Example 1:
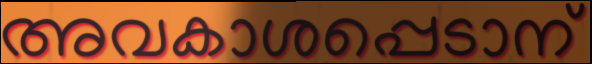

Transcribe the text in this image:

അവകാശപ്പെടാന്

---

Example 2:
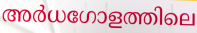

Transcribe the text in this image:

അർധഗോളത്തിലെ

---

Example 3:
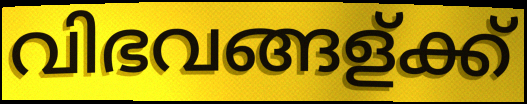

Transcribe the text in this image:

വിഭവങ്ങള്ക്ക്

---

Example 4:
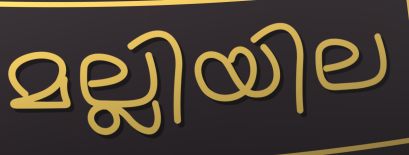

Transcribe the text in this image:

മല്ലിയില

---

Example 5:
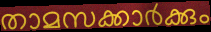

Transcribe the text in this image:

താമസക്കാർക്കും